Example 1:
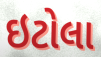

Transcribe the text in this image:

ઇટોલા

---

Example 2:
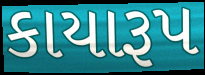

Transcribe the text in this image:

કાયારૂપ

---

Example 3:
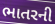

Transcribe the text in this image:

ભાતરની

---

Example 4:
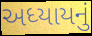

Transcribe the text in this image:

અધ્યાયનું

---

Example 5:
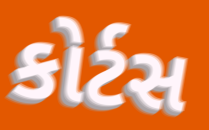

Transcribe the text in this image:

કોર્ટસ